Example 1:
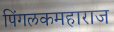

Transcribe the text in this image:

पिंगलकमहाराज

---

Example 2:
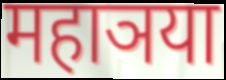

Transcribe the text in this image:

महाञया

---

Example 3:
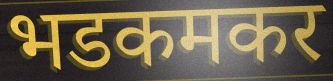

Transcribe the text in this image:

भडकमकर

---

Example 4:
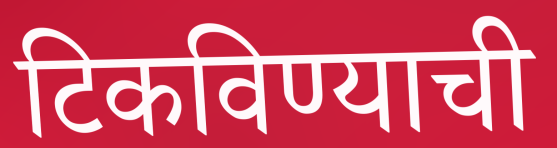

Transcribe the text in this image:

टिकविण्याची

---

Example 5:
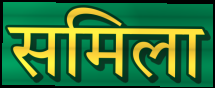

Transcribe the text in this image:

समिला